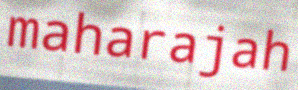
maharajah